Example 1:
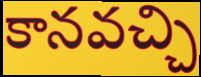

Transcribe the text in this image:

కానవచ్చి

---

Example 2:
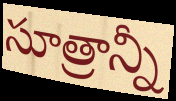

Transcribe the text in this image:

సూత్రాన్నీ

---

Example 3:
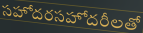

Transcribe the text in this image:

సహోదరసహోదరీలతో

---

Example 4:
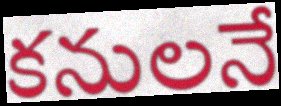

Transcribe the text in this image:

కనులనే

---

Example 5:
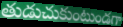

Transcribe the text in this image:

తుడుచుకుంటుండగా